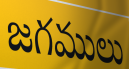
జగములు